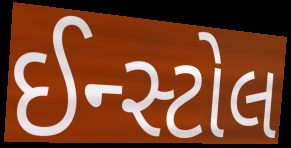
ઈન્સ્ટોલ